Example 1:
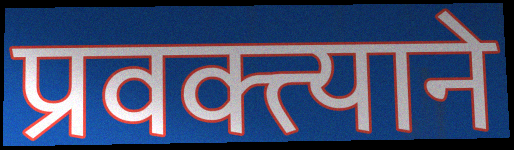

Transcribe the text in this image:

प्रवक्त्याने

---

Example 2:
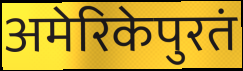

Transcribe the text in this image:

अमेरिकेपुरतं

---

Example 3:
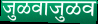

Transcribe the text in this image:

जुळवाजुळव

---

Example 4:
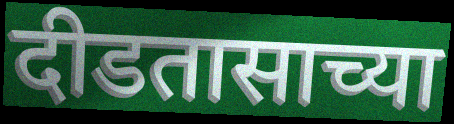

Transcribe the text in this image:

दीडतासाच्या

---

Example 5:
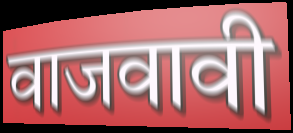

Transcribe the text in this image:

वाजवावी